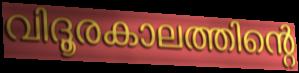
വിദൂരകാലത്തിന്റെ